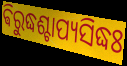
ଵିରୁଦ୍ଧଶ୍ଚାପ୍ଯସିଦ୍ଧଃ